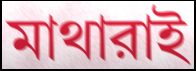
মাথারাই